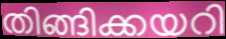
തിങ്ങിക്കയറി